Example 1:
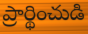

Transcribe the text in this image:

ప్రార్థించుడి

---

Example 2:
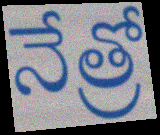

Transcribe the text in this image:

నేత్రో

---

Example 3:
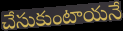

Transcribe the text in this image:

చేసుకుంటాయనే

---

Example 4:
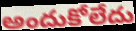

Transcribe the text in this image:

అందుకోలేదు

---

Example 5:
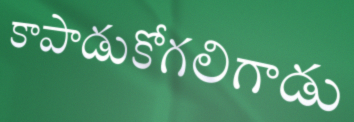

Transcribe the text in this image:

కాపాడుకోగలిగాడు